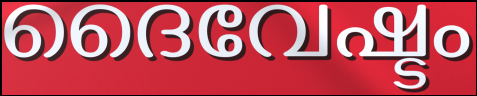
ദൈവേഷ്ടം